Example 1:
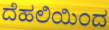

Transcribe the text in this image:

ದೆಹಲಿಯಿಂದ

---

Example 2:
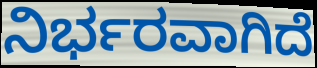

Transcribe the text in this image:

ನಿರ್ಭರವಾಗಿದೆ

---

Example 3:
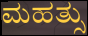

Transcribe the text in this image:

ಮಹತ್ಸು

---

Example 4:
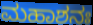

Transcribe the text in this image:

ಮಹಾಶನಃ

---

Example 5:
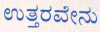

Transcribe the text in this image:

ಉತ್ತರವೇನು